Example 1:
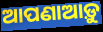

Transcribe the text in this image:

ଆପଣାଆଡ଼ୁ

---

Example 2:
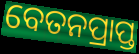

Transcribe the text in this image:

ବେତନପ୍ରାପ୍ତ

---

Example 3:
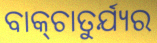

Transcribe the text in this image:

ବାକ୍‍ଚାତୁର୍ଯ୍ୟର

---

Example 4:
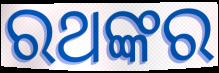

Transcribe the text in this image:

ରଥଙ୍କର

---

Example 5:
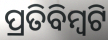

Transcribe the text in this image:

ପ୍ରତିବିମ୍ବଟି